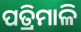
ପତ୍ରିମାଳି